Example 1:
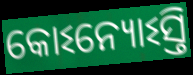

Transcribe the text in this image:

କୋଽନ୍ୟୋଽସ୍ତି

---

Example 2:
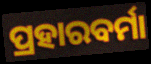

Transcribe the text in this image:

ପ୍ରହାରବର୍ମା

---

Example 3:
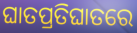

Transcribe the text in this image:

ଘାତପ୍ରତିଘାତରେ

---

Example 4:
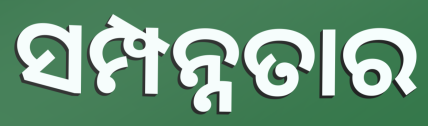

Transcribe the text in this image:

ସମ୍ପନ୍ନତାର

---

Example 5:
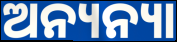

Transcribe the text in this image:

ଅନ୍ୟନ୍ୟା